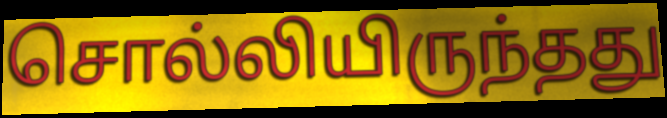
சொல்லியிருந்தது